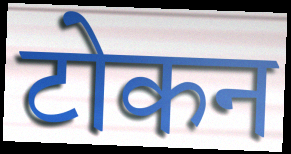
टोकन